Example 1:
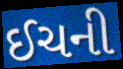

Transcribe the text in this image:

ઈચની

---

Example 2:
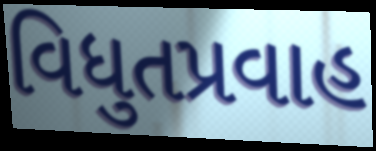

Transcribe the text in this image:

વિધુતપ્રવાહ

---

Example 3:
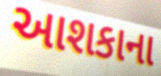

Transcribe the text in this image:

આશકાના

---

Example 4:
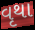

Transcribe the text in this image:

વૃથા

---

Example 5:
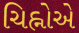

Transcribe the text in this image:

ચિહ્નોએ